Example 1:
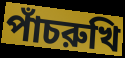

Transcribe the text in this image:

পাঁচরুখি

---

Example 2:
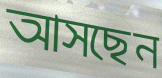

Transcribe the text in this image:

আসছেন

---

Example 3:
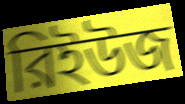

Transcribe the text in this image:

রিইউজ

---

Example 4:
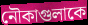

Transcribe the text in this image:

নৌকাগুলাকে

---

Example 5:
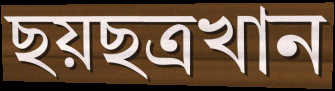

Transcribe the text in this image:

ছয়ছত্রখান